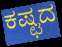
ಕಷ್ಟದ